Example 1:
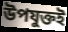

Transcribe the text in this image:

উপযুক্তই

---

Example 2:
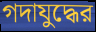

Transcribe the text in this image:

গদাযুদ্ধের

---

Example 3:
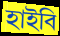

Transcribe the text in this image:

হাইবি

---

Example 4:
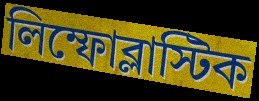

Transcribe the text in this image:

লিম্ফোব্লাস্টিক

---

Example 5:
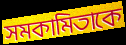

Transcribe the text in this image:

সমকামিতাকে